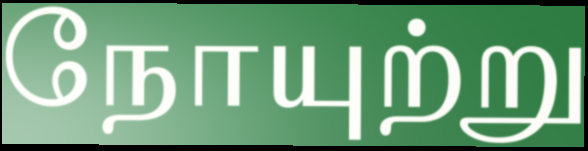
நோயுற்று